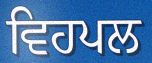
ਵਿਹਪਲ